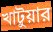
খাটুয়ার